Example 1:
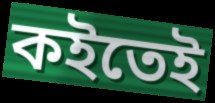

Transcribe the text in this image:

কইতেই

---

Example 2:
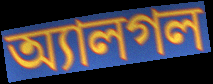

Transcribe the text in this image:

অ্যালগল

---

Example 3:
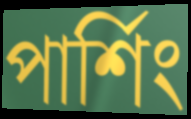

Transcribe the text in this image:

পার্শিং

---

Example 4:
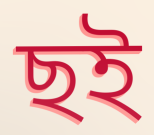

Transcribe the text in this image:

ছই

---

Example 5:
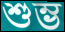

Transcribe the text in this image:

শুম্ভ